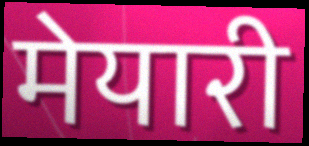
मेयारी